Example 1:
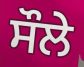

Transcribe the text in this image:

ਸੌਲੇ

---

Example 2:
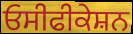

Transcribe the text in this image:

ਓਸੀਫੀਕੇਸ਼ਨ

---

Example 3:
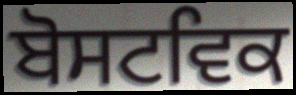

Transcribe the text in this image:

ਬੋਸਟਵਿਕ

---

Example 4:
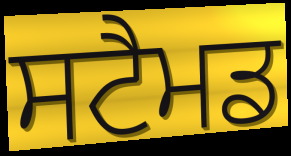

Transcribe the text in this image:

ਸਟੈਮਡ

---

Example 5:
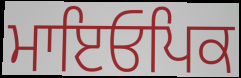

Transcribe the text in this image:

ਮਾਇਓਪਿਕ